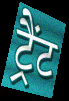
ट्रैंट